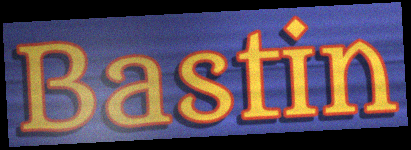
Bastin